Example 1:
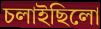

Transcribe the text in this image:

চলাইছিলো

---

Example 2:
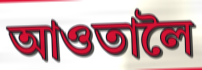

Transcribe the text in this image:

আওতালৈ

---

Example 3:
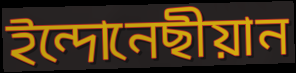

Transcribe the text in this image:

ইন্দোনেছীয়ান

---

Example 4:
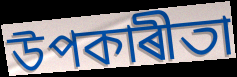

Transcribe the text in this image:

উপকাৰীতা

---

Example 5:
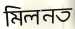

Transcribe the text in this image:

মিলনত